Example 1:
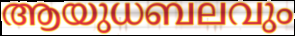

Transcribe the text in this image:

ആയുധബലവും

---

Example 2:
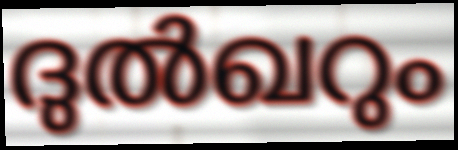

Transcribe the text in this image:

ദുൽഖറും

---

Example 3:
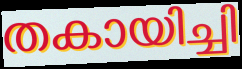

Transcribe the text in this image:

തകായിച്ചി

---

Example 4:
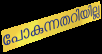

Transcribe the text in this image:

പോകുന്നതറിയില്ല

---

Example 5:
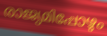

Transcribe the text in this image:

രാജ്യമിപ്പോഴും